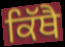
ਕਿੱਥੈ